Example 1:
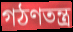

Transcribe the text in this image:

গঠণতন্ত্র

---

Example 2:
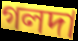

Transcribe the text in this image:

গলদা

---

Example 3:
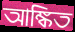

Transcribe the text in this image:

আঙ্কিত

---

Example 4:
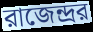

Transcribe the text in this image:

রাজেন্দ্রর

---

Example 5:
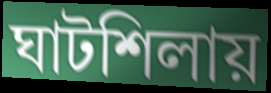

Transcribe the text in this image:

ঘাটশিলায়